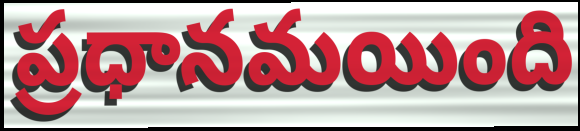
ప్రధానమయింది